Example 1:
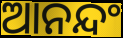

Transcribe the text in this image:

ଆନନ୍ଦଂ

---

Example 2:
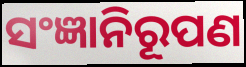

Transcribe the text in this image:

ସଂଜ୍ଞାନିରୂପଣ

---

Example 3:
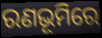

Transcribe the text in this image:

ରଣଭୂମିରେ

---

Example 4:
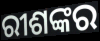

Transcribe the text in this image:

ରୀଶଙ୍କର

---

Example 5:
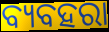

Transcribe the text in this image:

ବ୍ୟବହରା